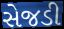
સેજડી